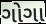
ગોગા